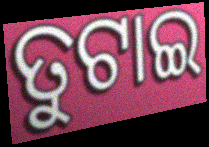
ତୁଟାଇ